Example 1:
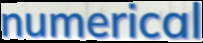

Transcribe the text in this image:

numerical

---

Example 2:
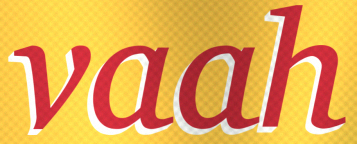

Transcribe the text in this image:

vaah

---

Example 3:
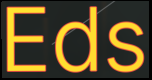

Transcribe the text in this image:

Eds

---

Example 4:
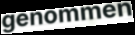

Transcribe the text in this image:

genommen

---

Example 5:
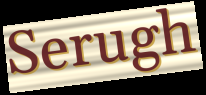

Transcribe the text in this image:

Serugh